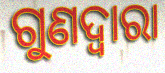
ଗୁଣଦ୍ଵାରା